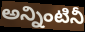
అన్నింటినీ